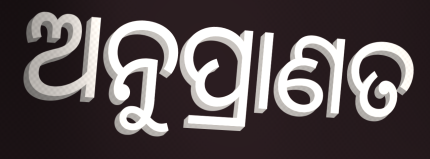
ଅନୁପ୍ରାଣତ